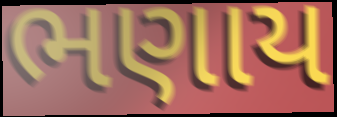
ભણાય